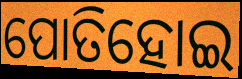
ପୋତିହୋଇ